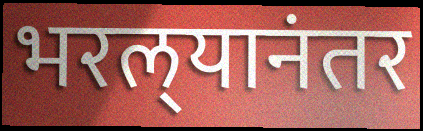
भरल्यानंतर